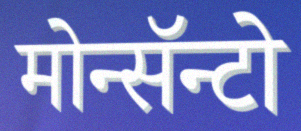
मोन्सॅन्टो